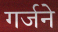
गर्जने